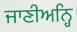
ਜਾਣੀਅਨ੍ਹਿ